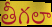
తీగలా